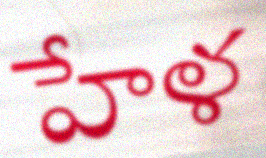
హేళ